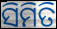
ସିମିତି